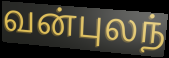
வன்புலந்